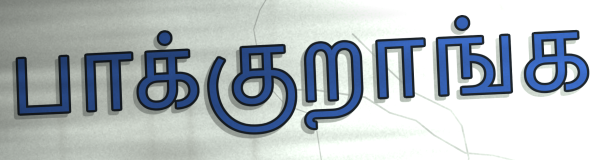
பாக்குறாங்க